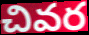
చివర